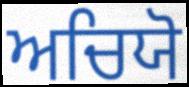
ਅਚਿਯੋ